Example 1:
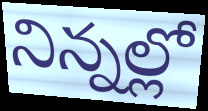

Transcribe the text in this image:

నిన్నల్లో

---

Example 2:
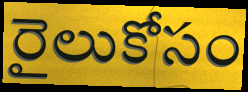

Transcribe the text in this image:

రైలుకోసం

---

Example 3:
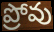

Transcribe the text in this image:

ప్రోవు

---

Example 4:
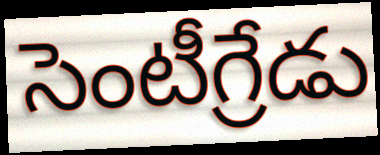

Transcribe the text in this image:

సెంటీగ్రేడు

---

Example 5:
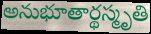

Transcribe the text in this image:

అనుభూతార్థస్మృతి